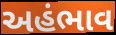
અહંભાવ